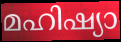
മഹിഷ്യാ